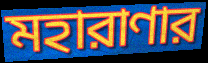
মহারাণার